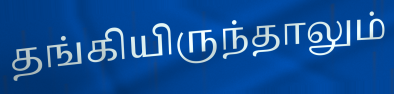
தங்கியிருந்தாலும்